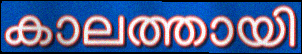
കാലത്തായി